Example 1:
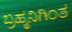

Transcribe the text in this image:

ಬ್ರಹ್ಮನಿಗಿಂತ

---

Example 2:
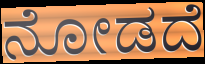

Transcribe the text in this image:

ನೋಡದೆ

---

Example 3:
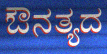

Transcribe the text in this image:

ಔನತ್ಯದ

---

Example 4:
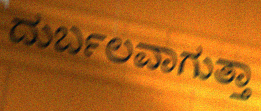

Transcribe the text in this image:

ದುರ್ಬಲವಾಗುತ್ತಾ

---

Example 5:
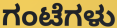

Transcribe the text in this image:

ಗಂಟೆಗಳು